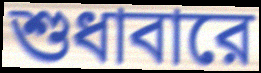
শুধাবারে